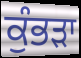
ਕੁੰਭੜਾ